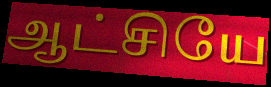
ஆட்சியே